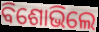
ବିଶୋଭିଲେ